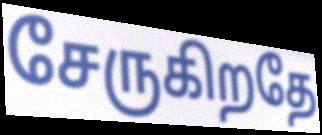
சேருகிறதே